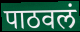
पाठवलं